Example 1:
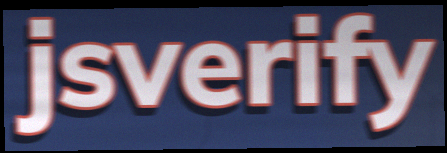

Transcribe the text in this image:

jsverify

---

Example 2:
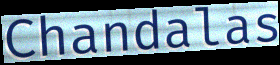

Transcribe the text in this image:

Chandalas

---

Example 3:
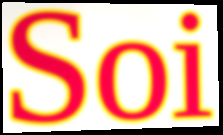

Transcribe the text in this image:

Soi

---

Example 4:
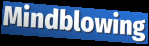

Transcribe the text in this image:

Mindblowing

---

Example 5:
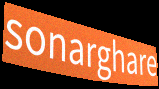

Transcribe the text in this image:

sonarghare